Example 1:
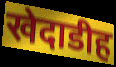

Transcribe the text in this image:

खेदाडीह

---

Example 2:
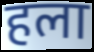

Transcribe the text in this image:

हला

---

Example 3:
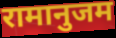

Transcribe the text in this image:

रामानुजम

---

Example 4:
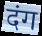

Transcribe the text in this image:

दंग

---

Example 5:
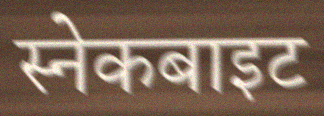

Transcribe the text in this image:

स्नेकबाइट